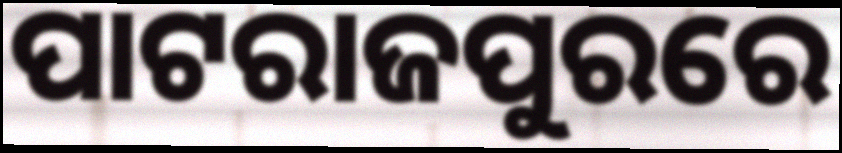
ପାଟରାଜପୁରରେ